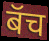
बॅच